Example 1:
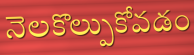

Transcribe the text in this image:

నెలకొల్పుకోవడం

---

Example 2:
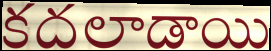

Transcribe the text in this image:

కదలాడాయి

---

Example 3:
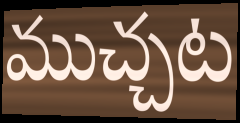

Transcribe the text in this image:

ముచ్చట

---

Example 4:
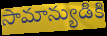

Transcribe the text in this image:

సామాన్యుడికి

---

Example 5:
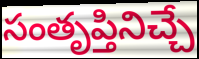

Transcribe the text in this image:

సంతృప్తినిచ్చే